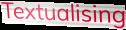
Textualising